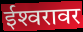
ईश्‍वरावर